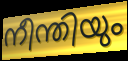
നീന്തിയും